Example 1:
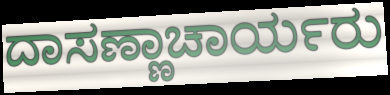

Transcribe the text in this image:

ದಾಸಣ್ಣಾಚಾರ್ಯರು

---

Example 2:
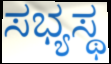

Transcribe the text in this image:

ಸಭ್ಯಸ್ಥ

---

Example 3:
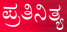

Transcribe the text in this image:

ಪ್ರತಿನಿತ್ಯ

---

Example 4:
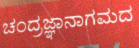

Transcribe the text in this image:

ಚಂದ್ರಜ್ಞಾನಾಗಮದ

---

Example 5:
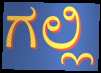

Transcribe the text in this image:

ಗಲ್ಲಿ